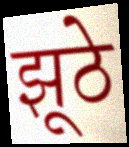
झूठे